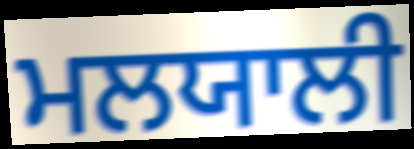
ਮਲਯਾਲੀ